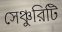
সেঞ্চুরিটি